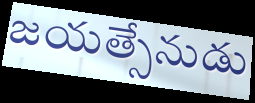
జయత్సేనుడు